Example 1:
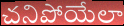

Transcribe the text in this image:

చనిపోయేలా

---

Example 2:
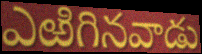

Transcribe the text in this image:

ఎఱిగినవాడు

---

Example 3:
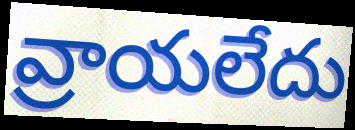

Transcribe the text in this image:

వ్రాయలేదు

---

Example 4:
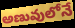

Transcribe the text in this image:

అణువులోనే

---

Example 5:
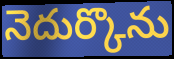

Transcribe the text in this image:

నెదుర్కొను